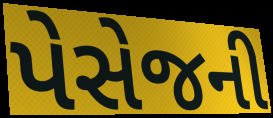
પેસેજની